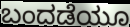
ಬಂದಡೆಯೂ